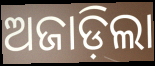
ଅଜାଡ଼ିଲା